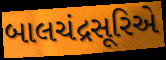
બાલચંદ્રસૂરિએ